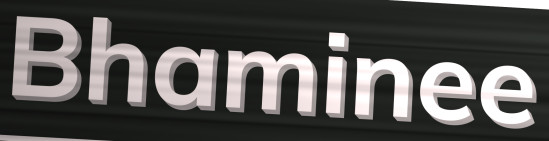
Bhaminee